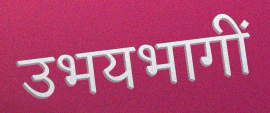
उभयभागीं